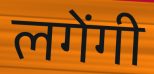
लगेंगी